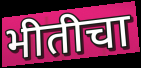
भीतीचा